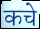
कचे